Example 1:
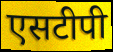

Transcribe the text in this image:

एसटीपी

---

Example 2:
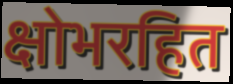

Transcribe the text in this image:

क्षोभरहित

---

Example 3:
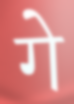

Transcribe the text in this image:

गे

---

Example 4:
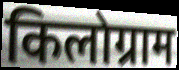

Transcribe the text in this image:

किलोग्राम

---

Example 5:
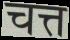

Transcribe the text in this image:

चत्त